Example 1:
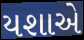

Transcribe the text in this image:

યશાએ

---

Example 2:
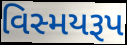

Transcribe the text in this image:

વિસ્મયરૂપ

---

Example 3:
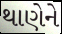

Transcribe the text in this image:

થાણેને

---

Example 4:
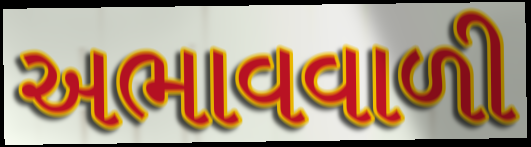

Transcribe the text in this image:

અભાવવાળી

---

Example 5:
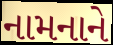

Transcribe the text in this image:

નામનાને